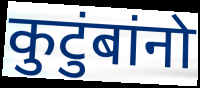
कुटुंबांनो